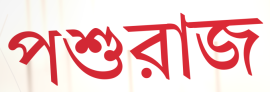
পশুরাজ